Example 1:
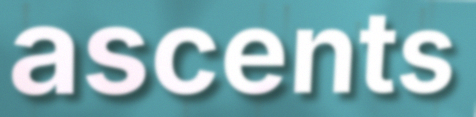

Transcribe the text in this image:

ascents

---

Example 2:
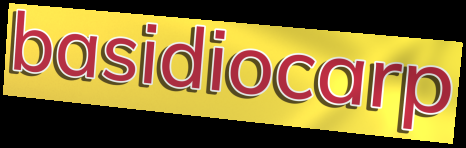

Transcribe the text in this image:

basidiocarp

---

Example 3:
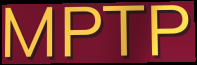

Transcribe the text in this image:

MPTP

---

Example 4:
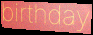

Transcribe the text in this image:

birthday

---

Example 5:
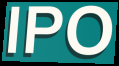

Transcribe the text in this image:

IPO